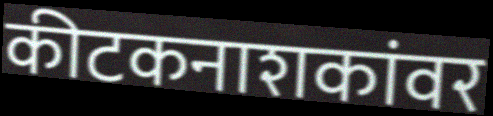
कीटकनाशकांवर